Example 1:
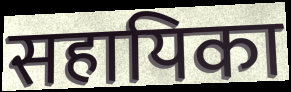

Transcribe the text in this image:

सहायिका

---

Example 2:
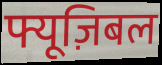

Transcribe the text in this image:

फ्यूज़िबल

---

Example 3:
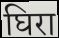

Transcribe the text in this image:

घिरा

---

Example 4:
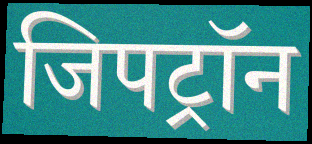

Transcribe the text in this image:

जिपट्रॉन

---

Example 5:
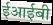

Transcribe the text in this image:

ईआईबी